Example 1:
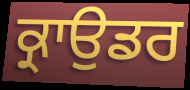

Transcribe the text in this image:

ਕ੍ਰਾਉਡਰ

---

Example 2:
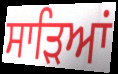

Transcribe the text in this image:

ਸਾੜਿਆਂ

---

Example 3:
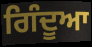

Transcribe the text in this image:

ਗਿੰਦੂਆ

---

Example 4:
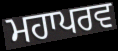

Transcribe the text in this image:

ਮਹਾਪਰਵ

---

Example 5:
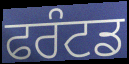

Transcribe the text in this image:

ਫਰੰਟਡ